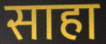
साहा